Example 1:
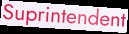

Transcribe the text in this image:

Suprintendent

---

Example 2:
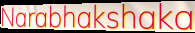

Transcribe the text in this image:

Narabhakshaka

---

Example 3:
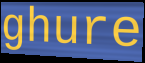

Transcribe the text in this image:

ghure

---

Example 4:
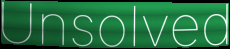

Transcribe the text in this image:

Unsolved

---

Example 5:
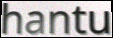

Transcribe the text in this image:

hantu